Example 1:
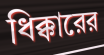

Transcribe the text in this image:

ধিক্কারের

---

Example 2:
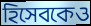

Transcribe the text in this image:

হিসেবকেও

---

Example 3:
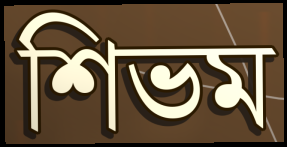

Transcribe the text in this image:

শিভম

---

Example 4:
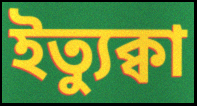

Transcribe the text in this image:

ইত্যুক্বা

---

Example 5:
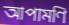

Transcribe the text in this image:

আপামণি